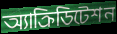
অ্যাক্রিডিটেশন